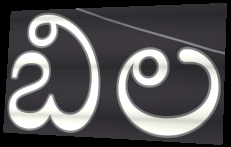
బిల